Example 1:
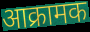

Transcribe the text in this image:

आक्रामक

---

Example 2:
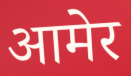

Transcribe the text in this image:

आमेर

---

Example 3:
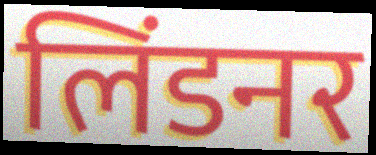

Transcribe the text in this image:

लिंडनर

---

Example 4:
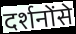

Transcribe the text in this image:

दर्शनोंसे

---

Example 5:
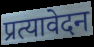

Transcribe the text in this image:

प्रत्यावेदन